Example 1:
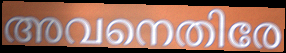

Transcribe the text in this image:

അവനെതിരേ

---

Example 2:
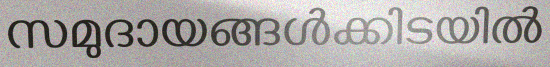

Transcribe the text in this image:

സമുദായങ്ങൾക്കിടയിൽ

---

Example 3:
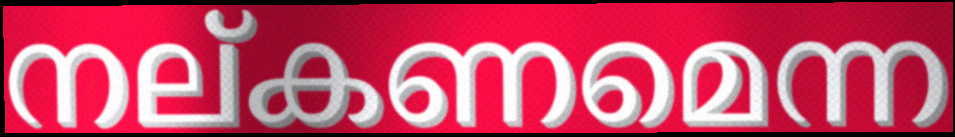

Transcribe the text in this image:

നല്കണമെന്ന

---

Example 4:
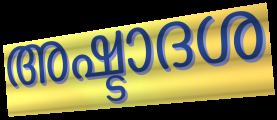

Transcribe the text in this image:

അഷ്ടാദശ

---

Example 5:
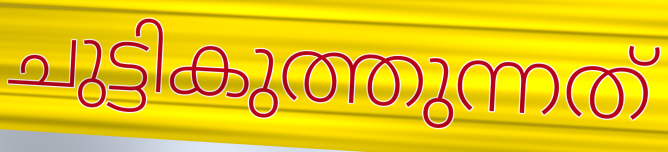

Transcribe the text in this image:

ചുട്ടികുത്തുന്നത്